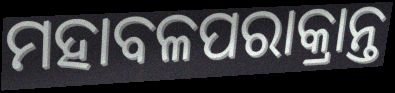
ମହାବଳପରାକ୍ରାନ୍ତ